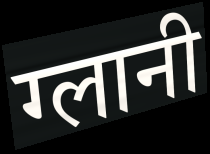
ग्लानी